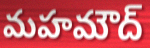
మహమౌద్